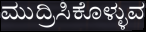
ಮುದ್ರಿಸಿಕೊಳ್ಳುವ